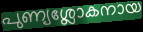
പുണ്യശ്ലോകനായ